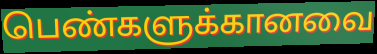
பெண்களுக்கானவை